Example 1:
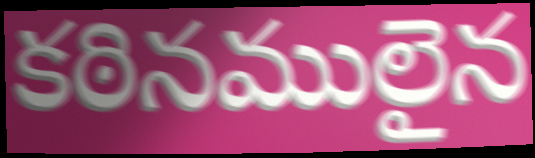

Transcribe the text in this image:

కఠినములైన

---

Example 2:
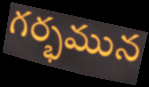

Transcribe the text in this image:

గర్భమున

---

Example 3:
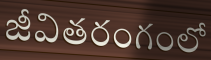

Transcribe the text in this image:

జీవితరంగంలో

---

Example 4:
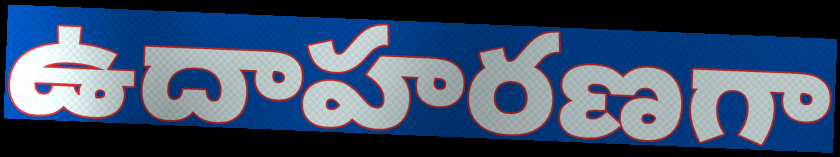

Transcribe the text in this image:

ఉదాహరణగా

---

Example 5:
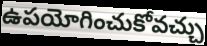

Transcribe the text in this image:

ఉపయోగించుకోవచ్చు